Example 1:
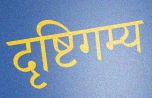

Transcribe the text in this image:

दृष्टिगम्य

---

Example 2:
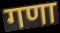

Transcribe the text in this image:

गणा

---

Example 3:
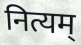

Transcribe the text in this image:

नित्यम्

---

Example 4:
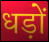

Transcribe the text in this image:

धड़ों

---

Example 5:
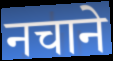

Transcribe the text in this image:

नचाने